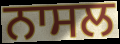
ਨਾਸਲ